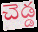
చెడ్డ